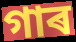
গাৰ